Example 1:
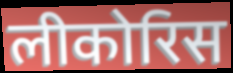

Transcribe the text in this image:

लीकोरिस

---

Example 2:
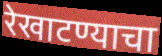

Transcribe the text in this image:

रेखाटण्याचा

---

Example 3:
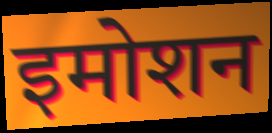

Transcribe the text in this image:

इमोशन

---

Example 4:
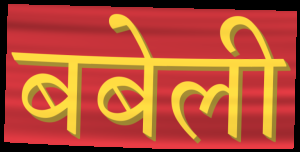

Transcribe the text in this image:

बबेली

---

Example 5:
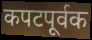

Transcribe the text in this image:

कपटपूर्वक